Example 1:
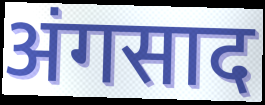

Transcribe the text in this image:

अंगसाद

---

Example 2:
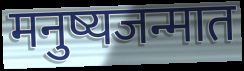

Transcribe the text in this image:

मनुष्यजन्मात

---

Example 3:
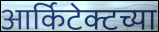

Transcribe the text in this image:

आर्किटेक्टच्या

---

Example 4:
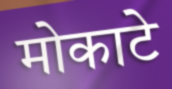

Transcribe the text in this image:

मोकाटे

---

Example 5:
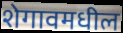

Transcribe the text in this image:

शेगावमधील